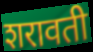
शरावती